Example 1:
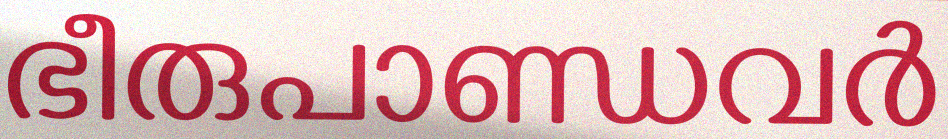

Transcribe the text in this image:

ഭീരുപാണ്ഡവർ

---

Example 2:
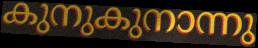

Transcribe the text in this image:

കുനുകുനാന്നു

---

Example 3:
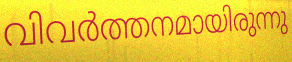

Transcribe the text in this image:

വിവർത്തനമായിരുന്നു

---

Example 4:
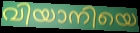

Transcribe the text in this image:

വിയാനിയെ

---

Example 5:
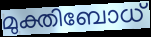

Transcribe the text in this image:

മുക്തിബോധ്